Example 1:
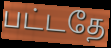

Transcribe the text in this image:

பட்டதே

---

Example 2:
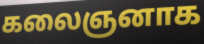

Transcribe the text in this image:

கலைஞனாக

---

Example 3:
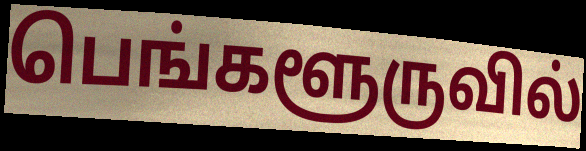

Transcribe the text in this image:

பெங்களூருவில்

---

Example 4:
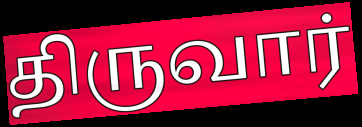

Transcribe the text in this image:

திருவார்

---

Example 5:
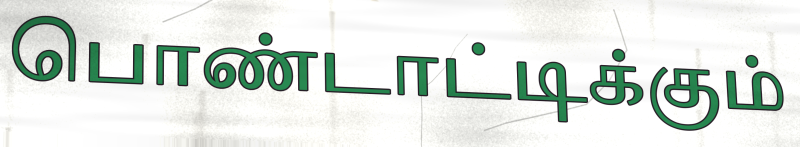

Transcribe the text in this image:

பொண்டாட்டிக்கும்